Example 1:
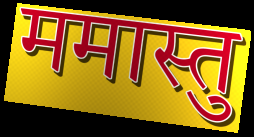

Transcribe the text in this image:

ममास्तु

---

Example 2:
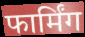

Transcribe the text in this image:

फार्मिंग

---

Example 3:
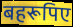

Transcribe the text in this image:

बहरूपिए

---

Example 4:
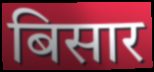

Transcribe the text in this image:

बिसार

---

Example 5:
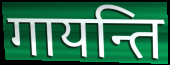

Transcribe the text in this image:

गायन्ति